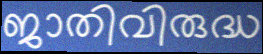
ജാതിവിരുദ്ധ